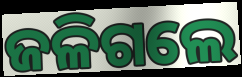
ଜଳିଗଲେ